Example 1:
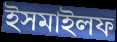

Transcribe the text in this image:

ইসমাইলফ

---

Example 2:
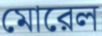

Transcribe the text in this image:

মোরেল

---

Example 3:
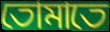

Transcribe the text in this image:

তোমাতে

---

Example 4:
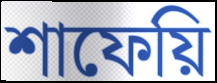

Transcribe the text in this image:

শাফেয়ি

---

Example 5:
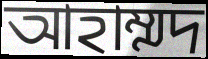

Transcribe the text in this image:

আহাম্মদ